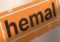
hemal